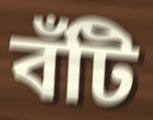
বঁটি